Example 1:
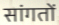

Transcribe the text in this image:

सांगतों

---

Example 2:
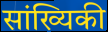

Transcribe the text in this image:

सांख्यिकी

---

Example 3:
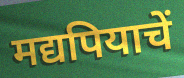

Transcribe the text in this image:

मद्यपियाचें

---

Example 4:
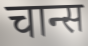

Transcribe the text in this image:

चान्स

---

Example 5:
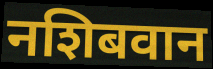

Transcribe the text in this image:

नशिबवान